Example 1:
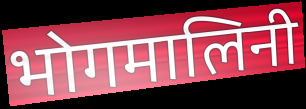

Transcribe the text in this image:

भोगमालिनी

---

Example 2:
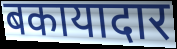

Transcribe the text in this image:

बकायादार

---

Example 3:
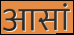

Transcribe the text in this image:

आसां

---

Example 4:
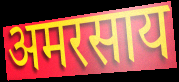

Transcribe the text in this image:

अमरसाय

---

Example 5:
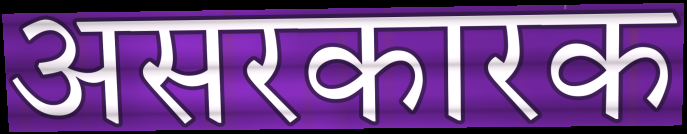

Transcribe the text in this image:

असरकारक